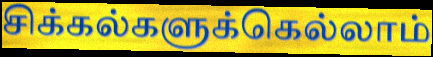
சிக்கல்களுக்கெல்லாம்